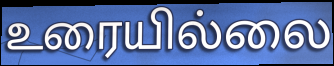
உரையில்லை